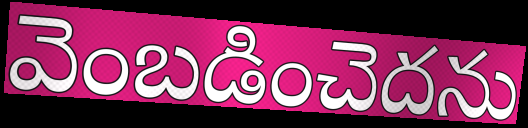
వెంబడించెదను